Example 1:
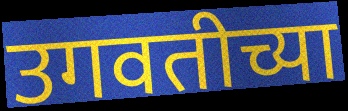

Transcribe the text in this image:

उगवतीच्या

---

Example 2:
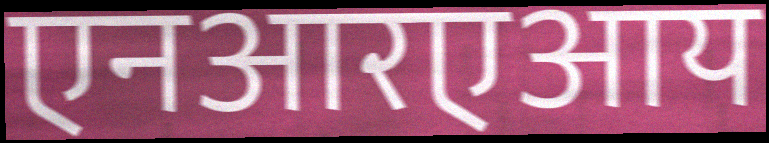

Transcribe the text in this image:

एनआरएआय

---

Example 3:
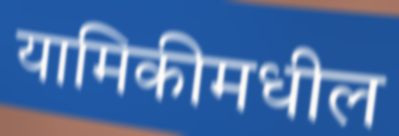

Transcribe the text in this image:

यामिकीमधील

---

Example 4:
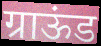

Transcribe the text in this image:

ग्राऊंड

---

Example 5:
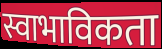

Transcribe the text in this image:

स्वाभाविकता